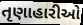
તૃણાહારીઓ